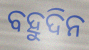
ବହୁଦିନ